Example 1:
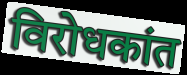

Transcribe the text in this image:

विरोधकांत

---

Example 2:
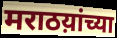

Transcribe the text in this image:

मराठय़ांच्या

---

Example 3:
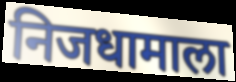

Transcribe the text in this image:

निजधामाला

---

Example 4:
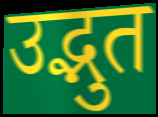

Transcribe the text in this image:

उद्भुत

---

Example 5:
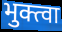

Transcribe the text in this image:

भुक्त्वा